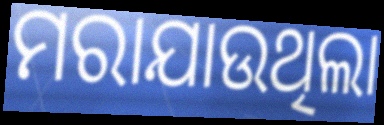
ମରାଯାଉଥିଲା